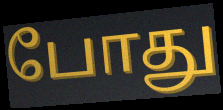
போது